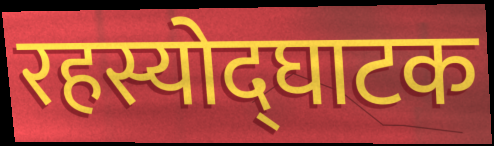
रहस्योद्घाटक